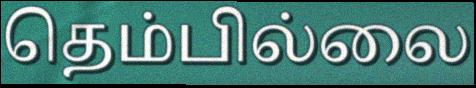
தெம்பில்லை